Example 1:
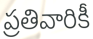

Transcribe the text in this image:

ప్రతివారికీ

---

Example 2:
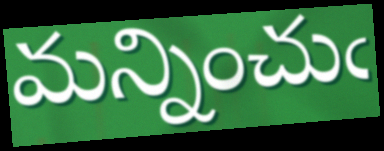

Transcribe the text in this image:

మన్నించుఁ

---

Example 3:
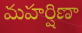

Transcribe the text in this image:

మహర్షిణా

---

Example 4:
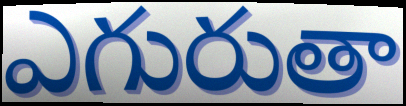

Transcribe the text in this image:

ఎగురుతా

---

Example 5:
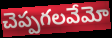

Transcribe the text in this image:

చెప్పగలవేమో